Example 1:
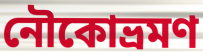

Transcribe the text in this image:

নৌকোভ্রমণ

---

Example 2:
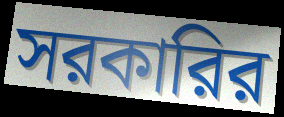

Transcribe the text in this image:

সরকারির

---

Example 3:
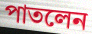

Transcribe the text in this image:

পাতলেন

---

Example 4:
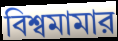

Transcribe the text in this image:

বিশ্বমামার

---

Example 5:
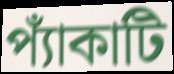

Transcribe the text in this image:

প্যাঁকাটি